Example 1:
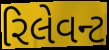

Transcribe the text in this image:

રિલેવન્ટ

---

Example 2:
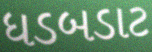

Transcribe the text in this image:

ધડબડાટ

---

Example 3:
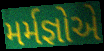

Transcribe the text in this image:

મર્મજ્ઞોએ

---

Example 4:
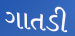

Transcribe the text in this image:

ગાતડી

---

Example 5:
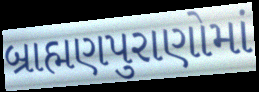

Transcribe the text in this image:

બ્રાહ્મણપુરાણોમાં